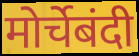
मोर्चेबंदी